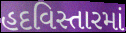
હદવિસ્તારમાં